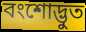
বংশোদ্ভুত